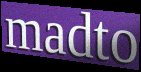
madto